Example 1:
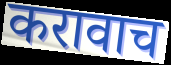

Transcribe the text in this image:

करावाच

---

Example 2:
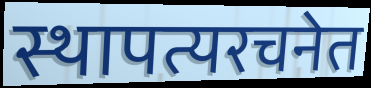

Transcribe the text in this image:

स्थापत्यरचनेत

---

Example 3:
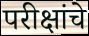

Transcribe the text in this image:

परीक्षांचे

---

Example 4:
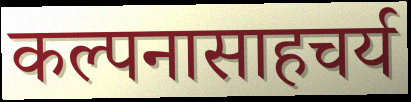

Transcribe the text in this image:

कल्पनासाहचर्य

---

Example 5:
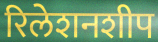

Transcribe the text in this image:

रिलेशनशीप